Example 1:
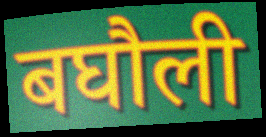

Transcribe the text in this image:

बघौली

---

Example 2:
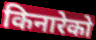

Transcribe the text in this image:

किनारेको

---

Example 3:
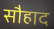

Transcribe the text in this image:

सौहाद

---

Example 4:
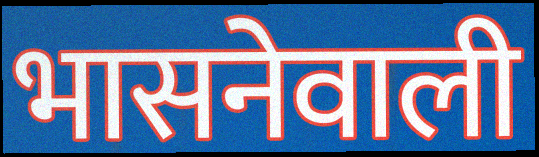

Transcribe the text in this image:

भासनेवाली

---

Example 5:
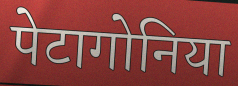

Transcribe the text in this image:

पेटागोनिया